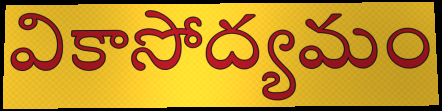
వికాసోద్యమం